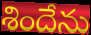
శిందేను